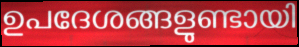
ഉപദേശങ്ങളുണ്ടായി